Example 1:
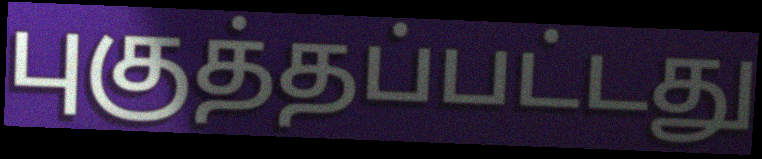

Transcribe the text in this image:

புகுத்தப்பட்டது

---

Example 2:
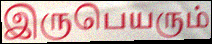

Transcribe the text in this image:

இருபெயரும்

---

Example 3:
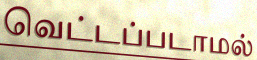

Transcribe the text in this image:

வெட்டப்படாமல்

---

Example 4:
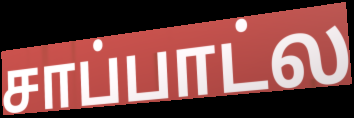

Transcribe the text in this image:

சாப்பாட்ல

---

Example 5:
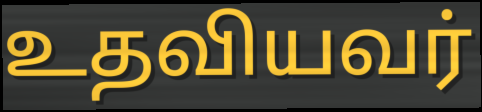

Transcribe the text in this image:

உதவியவர்